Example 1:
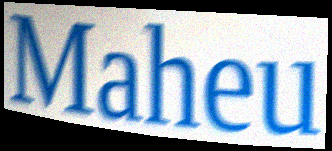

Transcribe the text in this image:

Maheu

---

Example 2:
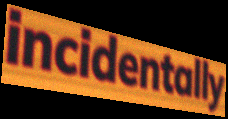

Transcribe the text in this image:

incidentally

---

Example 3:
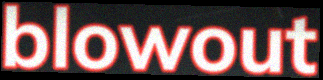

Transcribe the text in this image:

blowout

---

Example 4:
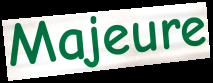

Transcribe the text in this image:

Majeure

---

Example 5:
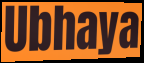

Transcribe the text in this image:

Ubhaya